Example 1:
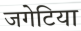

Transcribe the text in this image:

जगेटिया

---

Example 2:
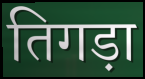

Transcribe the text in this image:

तिगड़ा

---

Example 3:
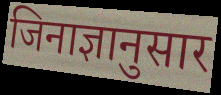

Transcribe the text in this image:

जिनाज्ञानुसार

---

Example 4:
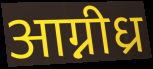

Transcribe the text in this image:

आग्नीध्र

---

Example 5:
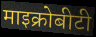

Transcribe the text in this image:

माइक्रोबीटी